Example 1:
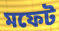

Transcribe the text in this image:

মফেট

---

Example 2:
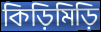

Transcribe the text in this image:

কিড়িমিড়ি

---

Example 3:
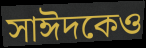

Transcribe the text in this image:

সাঈদকেও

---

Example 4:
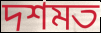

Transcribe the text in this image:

দশমত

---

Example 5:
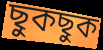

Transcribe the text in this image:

ছুকছুক